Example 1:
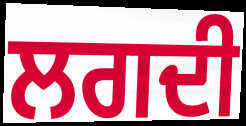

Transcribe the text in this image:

ਲਗਦੀ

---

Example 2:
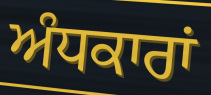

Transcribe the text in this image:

ਅੰਧਕਾਰਾਂ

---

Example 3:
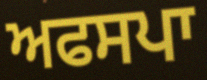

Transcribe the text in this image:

ਅਫਸਪਾ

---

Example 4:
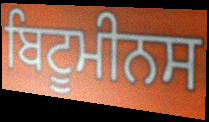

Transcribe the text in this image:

ਬਿਟੂਮੀਨਸ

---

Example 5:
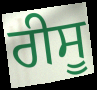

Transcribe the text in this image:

ਰੀਸੂ